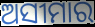
ଅସୀମାର